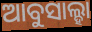
ଆବୁସାଲ୍ହା